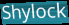
Shylock